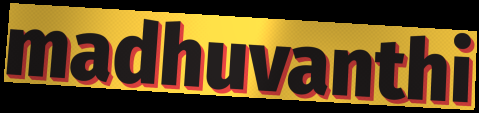
madhuvanthi